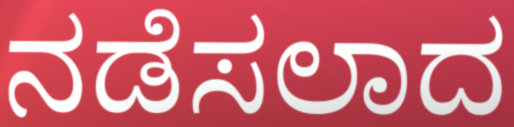
ನಡೆಸಲಾದ